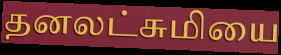
தனலட்சுமியை